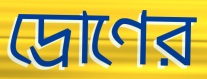
দ্রোণের